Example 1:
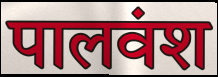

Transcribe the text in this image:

पालवंश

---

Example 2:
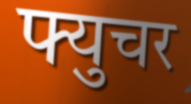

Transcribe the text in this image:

फ्युचर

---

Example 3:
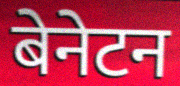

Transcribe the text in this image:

बेनेटन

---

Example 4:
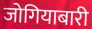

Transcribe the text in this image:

जोगियाबारी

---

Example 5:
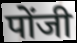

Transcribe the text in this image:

पोंजी